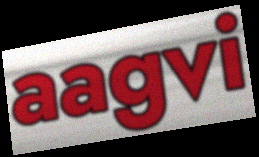
aagvi